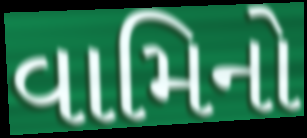
વામિનો